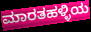
ಮಾರತಹಳ್ಳಿಯ